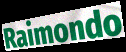
Raimondo